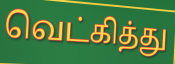
வெட்கித்து